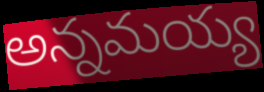
అన్నమయ్య